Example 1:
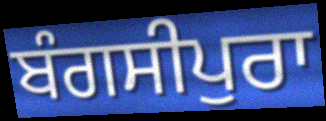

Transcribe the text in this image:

ਬੰਗਸੀਪੁਰਾ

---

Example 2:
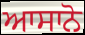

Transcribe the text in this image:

ਆਸਾਨੋ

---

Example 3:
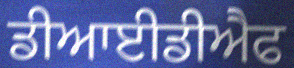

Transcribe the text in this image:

ਡੀਆਈਡੀਐਫ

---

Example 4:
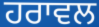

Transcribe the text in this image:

ਹਰਾਵਲ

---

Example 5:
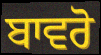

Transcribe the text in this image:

ਬਾਵਰੋ